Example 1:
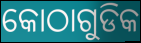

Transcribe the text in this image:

କୋଠାଗୁଡିକ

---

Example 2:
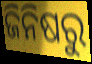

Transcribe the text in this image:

ଜିନିଷରୁ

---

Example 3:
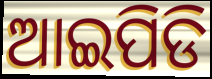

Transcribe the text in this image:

ଆଇପିଡି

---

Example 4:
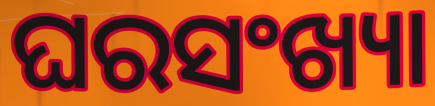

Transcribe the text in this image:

ଘରସଂଖ୍ୟା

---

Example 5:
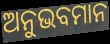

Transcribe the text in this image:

ଅନୁଭବମାନ